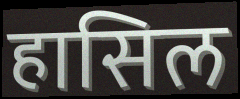
हासिल